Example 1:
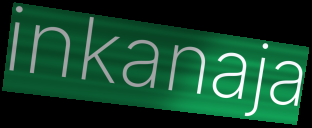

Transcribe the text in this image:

inkanaja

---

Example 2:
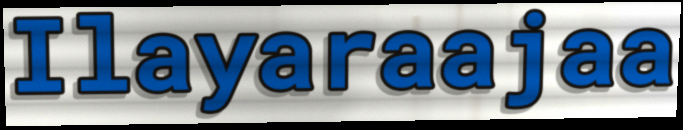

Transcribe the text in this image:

Ilayaraajaa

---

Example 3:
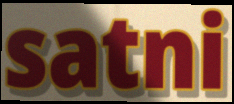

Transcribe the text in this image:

satni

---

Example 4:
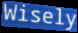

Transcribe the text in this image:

Wisely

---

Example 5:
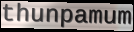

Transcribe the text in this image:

thunpamum